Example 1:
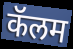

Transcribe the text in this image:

कॅलम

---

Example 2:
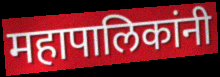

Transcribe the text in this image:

महापालिकांनी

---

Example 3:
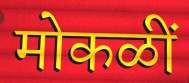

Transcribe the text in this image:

मोकळीं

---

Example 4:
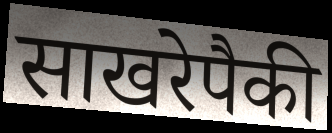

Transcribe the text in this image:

साखरेपैकी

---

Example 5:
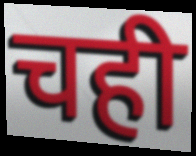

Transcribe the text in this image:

चही